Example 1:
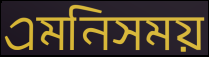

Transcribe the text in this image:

এমনিসময়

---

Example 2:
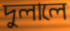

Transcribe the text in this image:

দুলালে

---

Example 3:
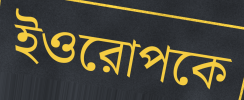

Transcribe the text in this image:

ইওরোপকে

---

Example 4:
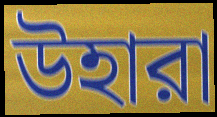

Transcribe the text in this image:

উহারা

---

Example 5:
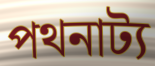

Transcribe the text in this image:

পথনাট্য